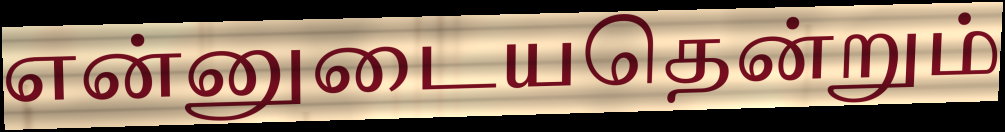
என்னுடையதென்றும்